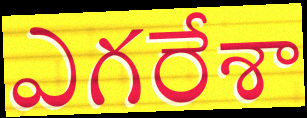
ఎగరేశా